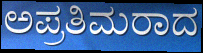
ಅಪ್ರತಿಮರಾದ